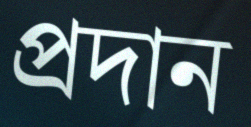
প্ৰদান